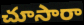
చూసారా